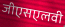
जीएसएलवी